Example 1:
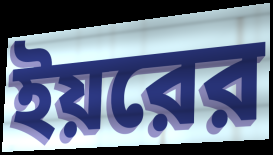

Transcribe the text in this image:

ইয়রের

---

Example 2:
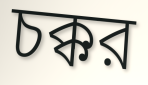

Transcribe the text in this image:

চক্কর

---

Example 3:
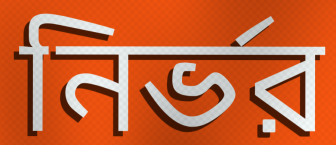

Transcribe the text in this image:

নির্ভর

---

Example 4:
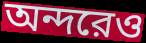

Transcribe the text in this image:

অন্দরেও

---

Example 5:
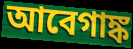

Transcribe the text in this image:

আবেগাঙ্ক